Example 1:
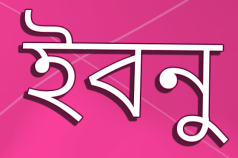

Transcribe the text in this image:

ইবনু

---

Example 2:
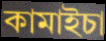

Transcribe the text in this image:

কামাইচা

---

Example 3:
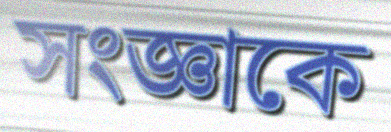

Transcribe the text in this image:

সংজ্ঞাকে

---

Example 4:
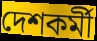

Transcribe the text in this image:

দেশকর্মী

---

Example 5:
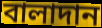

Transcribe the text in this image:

বালাদান